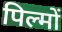
पिल्मों